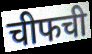
चीफची